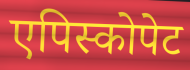
एपिस्कोपेट